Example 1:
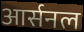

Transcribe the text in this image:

आर्सनल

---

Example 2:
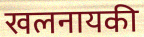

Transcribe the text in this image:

खलनायकी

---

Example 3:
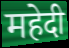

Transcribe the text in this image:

महेदी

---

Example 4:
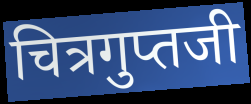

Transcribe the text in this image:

चित्रगुप्तजी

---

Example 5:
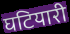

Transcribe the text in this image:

घटियारी